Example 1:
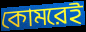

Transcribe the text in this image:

কোমরেই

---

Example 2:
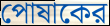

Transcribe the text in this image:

পোষাকের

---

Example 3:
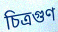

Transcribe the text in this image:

চিত্রগুণ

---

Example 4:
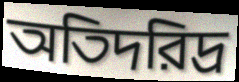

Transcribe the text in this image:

অতিদরিদ্র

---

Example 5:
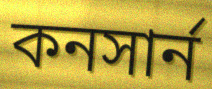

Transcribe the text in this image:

কনসার্ন